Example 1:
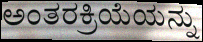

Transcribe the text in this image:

ಅಂತರಕ್ರಿಯೆಯನ್ನು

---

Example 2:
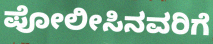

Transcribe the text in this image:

ಪೋಲೀಸಿನವರಿಗೆ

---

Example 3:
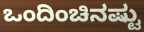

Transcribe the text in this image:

ಒಂದಿಂಚಿನಷ್ಟು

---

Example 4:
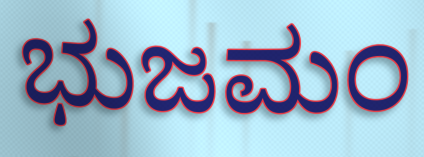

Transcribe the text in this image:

ಭುಜಮಂ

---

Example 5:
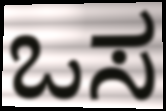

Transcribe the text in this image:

ಒಸ